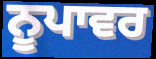
ਨੂਪਾਵਰ